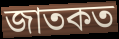
জাতকত